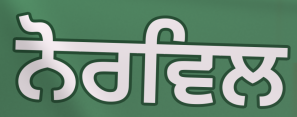
ਨੋਰਵਿਲ